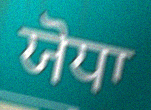
ਯੋਧਾ